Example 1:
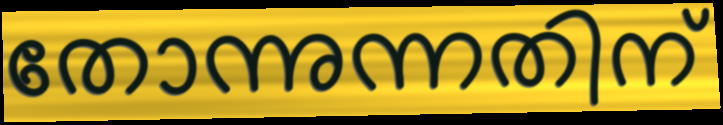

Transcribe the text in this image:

തോന്നുന്നതിന്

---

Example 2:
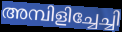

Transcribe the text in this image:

അമ്പിളിച്ചേച്ചി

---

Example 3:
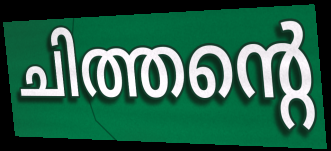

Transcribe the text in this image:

ചിത്തന്റെ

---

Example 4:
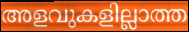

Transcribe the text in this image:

അളവുകളില്ലാത്ത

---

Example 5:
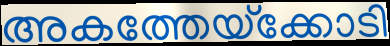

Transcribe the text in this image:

അകത്തേയ്‌ക്കോടി